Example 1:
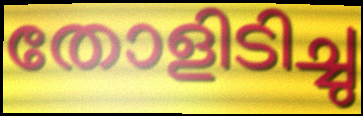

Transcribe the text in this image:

തോളിടിച്ചു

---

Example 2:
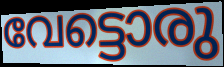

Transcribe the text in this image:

വേട്ടൊരു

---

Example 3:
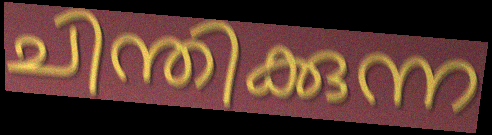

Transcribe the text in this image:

ചിന്തിക്കുന്ന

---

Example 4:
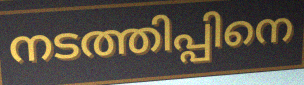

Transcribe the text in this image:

നടത്തിപ്പിനെ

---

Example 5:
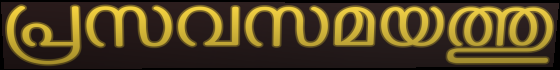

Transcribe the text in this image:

പ്രസവസമയത്തു